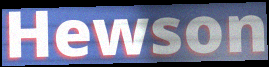
Hewson